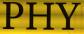
PHY